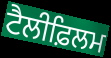
ਟੈਲੀਫ਼ਿਲਮ